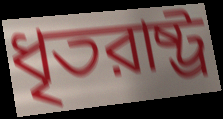
ধৃতরাষ্ট্র